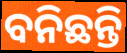
ବନିଛନ୍ତି